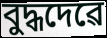
বুদ্ধদেৱে